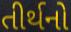
તીર્થનો